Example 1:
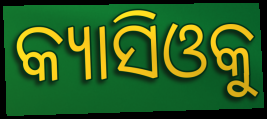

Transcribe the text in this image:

କ୍ୟାସିଓକୁ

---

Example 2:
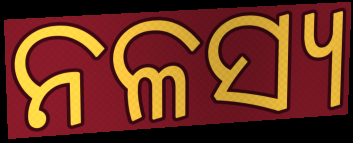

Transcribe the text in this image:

ନଳସ୍ୟ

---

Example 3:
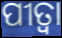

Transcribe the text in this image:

ପୀତ୍ବା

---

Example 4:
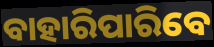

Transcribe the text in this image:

ବାହାରିପାରିବେ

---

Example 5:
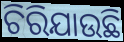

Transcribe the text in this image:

ଚିରିଯାଉଛି